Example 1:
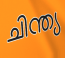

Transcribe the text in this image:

ചിന്ത്യ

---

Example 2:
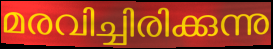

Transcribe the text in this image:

മരവിച്ചിരിക്കുന്നു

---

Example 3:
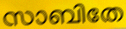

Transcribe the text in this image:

സാബിതേ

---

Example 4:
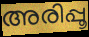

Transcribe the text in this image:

അരിപ്പൂ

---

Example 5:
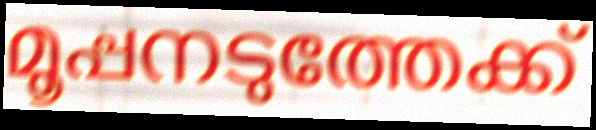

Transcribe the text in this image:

മൂപ്പനടുത്തേക്ക്